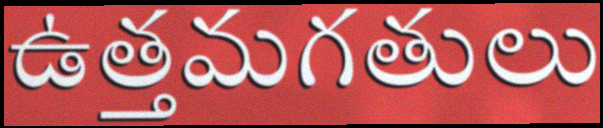
ఉత్తమగతులు